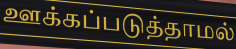
ஊக்கப்படுத்தாமல்